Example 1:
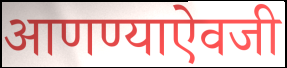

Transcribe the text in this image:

आणण्याऐवजी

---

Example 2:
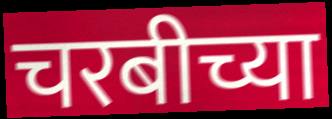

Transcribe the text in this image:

चरबीच्या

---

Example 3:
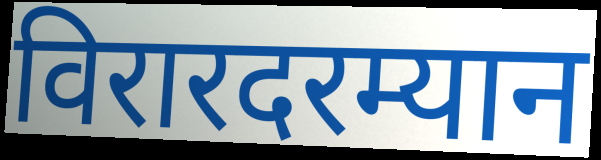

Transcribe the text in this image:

विरारदरम्यान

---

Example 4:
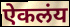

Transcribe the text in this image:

ऐकलंय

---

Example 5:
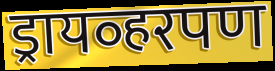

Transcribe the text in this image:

ड्रायव्हरपण